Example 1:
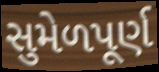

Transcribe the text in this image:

સુમેળપૂર્ણ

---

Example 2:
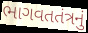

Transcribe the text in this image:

ભાગવતતંત્રનું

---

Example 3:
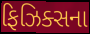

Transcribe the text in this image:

ફિઝિક્સના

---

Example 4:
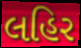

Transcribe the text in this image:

લહિર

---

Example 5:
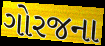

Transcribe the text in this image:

ગોરજના